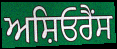
ਅਸ਼ਿਓਰੈਂਸ